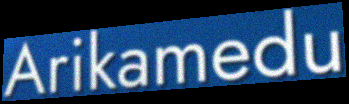
Arikamedu